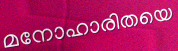
മനോഹാരിതയെ